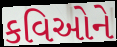
કવિઓને